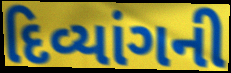
દિવ્યાંગની